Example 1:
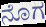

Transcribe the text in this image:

ನೊಗ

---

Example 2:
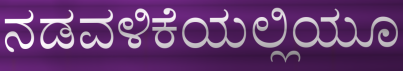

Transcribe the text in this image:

ನಡವಳಿಕೆಯಲ್ಲಿಯೂ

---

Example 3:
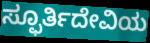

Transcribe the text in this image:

ಸ್ಫೂರ್ತಿದೇವಿಯ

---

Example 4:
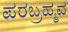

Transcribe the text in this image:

ಪರಬ್ರಹ್ಮವ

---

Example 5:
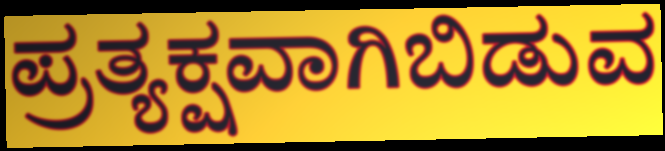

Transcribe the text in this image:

ಪ್ರತ್ಯಕ್ಷವಾಗಿಬಿಡುವ